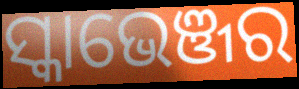
ସ୍କାଭେଞ୍ଜର